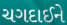
ચગદાઈને